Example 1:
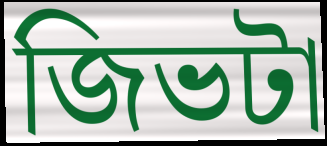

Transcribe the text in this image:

জিভটা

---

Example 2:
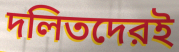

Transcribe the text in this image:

দলিতদেরই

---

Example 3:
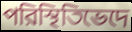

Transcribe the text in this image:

পরিস্থিতিভেদে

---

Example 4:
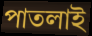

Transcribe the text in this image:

পাতলাই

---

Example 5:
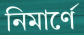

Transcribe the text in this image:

নিমার্ণে